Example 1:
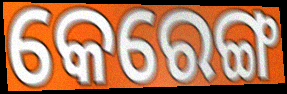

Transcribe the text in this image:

କେରେଙ୍ଗ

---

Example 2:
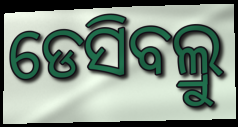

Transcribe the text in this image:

ଡେସିବଲ୍ରୁ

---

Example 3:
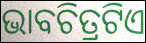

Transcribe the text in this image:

ଭାବଚିତ୍ରଟିଏ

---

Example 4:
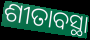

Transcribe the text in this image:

ଶୀତାବସ୍ଥା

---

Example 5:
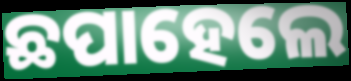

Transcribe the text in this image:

ଛପାହେଲେ